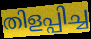
തിളപ്പിച്ച